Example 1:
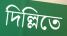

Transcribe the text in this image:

দিল্লিতে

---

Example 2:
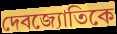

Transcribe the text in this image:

দেবজ্যোতিকে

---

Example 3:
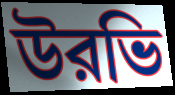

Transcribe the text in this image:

উরভি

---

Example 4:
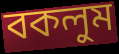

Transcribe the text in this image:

বকলুম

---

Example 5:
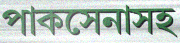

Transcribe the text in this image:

পাকসেনাসহ